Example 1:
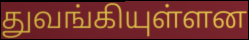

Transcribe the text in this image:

துவங்கியுள்ளன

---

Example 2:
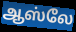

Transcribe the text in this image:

ஆஸ்லே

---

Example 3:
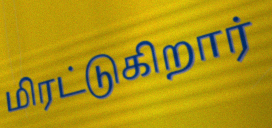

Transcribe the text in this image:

மிரட்டுகிறார்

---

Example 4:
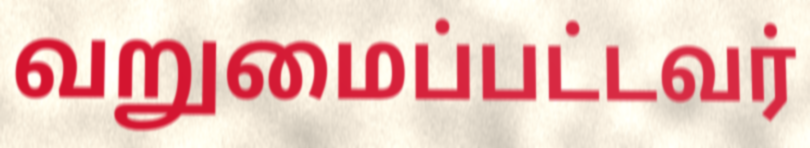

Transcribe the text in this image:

வறுமைப்பட்டவர்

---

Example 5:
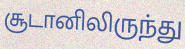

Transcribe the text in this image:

சூடானிலிருந்து